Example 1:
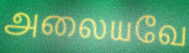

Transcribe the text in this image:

அலையவே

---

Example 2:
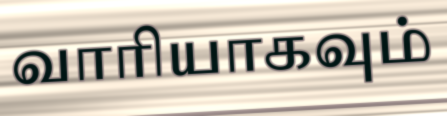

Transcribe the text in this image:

வாரியாகவும்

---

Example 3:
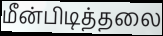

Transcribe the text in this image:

மீன்பிடித்தலை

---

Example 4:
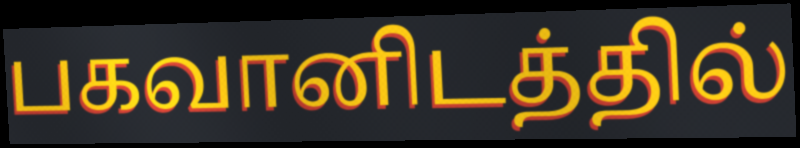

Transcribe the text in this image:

பகவானிடத்தில்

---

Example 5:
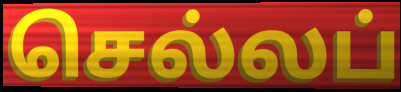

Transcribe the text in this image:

செல்லப்